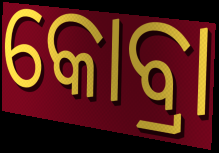
କୋବ୍ରା